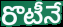
రొటీనే